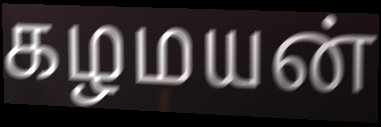
கழமயன்